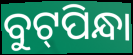
ବୁଟ୍‌ପିନ୍ଧା